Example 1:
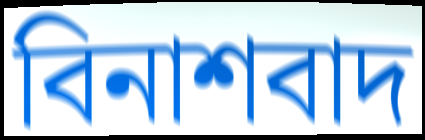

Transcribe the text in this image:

বিনাশবাদ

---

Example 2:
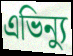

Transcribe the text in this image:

এভিন্যু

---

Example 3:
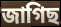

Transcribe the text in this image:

জাগিছ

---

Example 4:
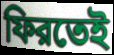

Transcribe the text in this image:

ফিরতেই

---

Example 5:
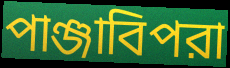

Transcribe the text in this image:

পাঞ্জাবিপরা